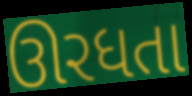
ઊરધતા